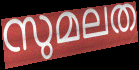
സുമലത